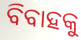
ବିବାହକୁ